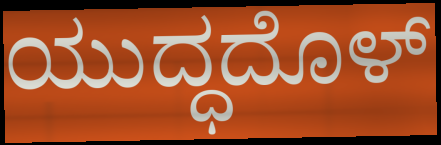
ಯುದ್ಧದೊಳ್